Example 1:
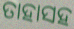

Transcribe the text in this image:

ତାହାସହ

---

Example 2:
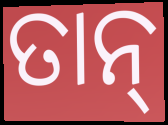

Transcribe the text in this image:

ତାନ୍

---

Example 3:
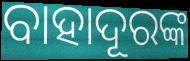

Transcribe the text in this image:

ବାହାଦୂରଙ୍କ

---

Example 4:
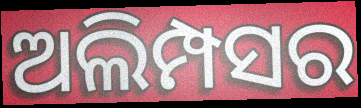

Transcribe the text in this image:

ଅଲିମ୍ପସର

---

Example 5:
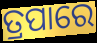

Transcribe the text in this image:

ତ୍ରପାରେ